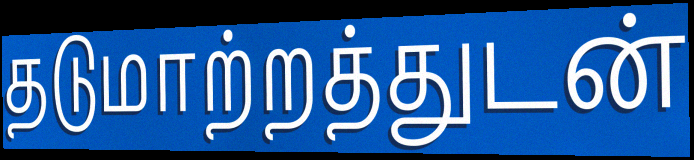
தடுமாற்றத்துடன்